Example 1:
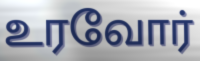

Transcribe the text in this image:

உரவோர்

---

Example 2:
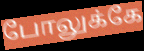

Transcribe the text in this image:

போலுக்கே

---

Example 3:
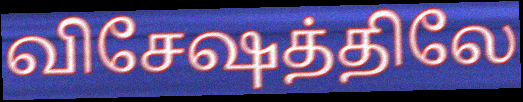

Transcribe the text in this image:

விசேஷத்திலே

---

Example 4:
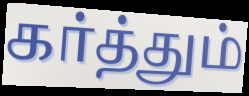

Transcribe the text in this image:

கர்த்தும்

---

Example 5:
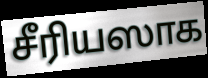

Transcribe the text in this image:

சீரியஸாக